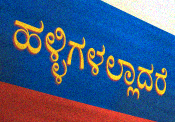
ಹಳ್ಳಿಗಳಲ್ಲಾದರೆ